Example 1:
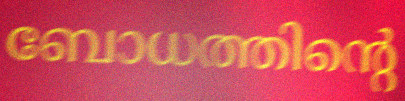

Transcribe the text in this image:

ബോധത്തിന്റെ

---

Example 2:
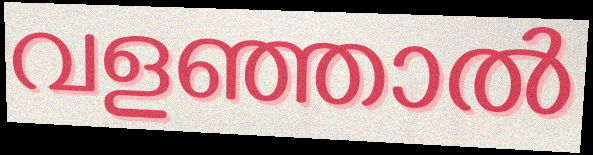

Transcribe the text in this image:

വളഞ്ഞാൽ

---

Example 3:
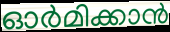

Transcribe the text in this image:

ഓർമിക്കാൻ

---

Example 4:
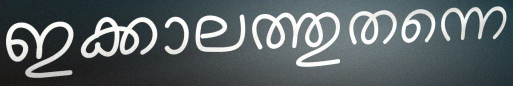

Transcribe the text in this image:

ഇക്കാലത്തുതന്നെ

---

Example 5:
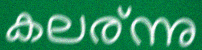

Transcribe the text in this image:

കലര്ന്നു